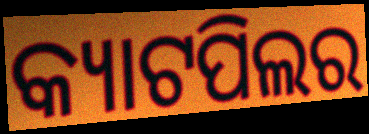
କ୍ୟାଟପିଲର